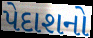
પેદાશનો